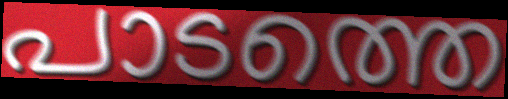
പാടത്തെ